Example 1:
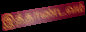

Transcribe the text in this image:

இத்தாண்டவம்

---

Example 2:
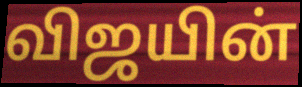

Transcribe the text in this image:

விஜயின்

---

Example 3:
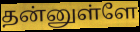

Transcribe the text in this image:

தன்னுள்ளே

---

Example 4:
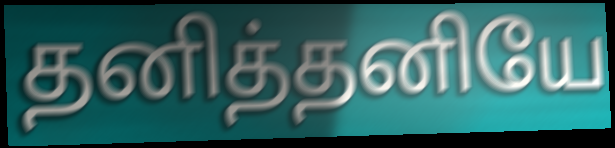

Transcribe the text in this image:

தனித்தனியே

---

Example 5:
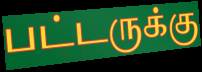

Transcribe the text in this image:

பட்டருக்கு